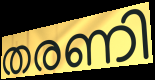
തരണി